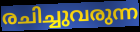
രചിച്ചുവരുന്ന